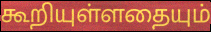
கூறியுள்ளதையும்